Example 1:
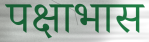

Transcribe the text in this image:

पक्षाभास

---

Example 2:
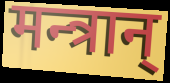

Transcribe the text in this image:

मन्त्रान्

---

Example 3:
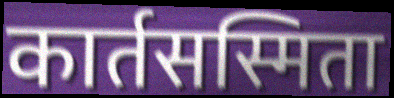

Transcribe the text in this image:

कार्तसस्मिता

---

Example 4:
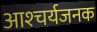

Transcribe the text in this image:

आश्‍चर्यजनक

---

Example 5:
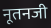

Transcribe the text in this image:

नूतनजी